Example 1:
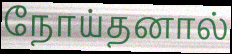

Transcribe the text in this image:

நோய்தனால்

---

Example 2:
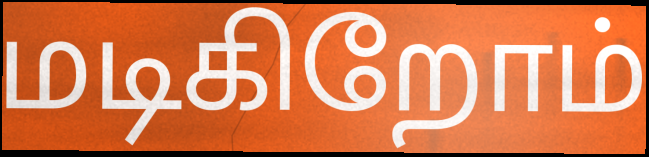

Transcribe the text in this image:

மடிகிறோம்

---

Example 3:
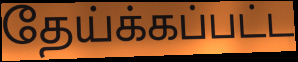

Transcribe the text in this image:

தேய்க்கப்பட்ட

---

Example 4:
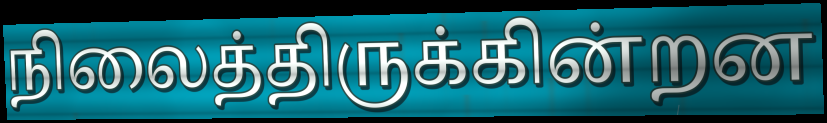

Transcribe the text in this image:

நிலைத்திருக்கின்றன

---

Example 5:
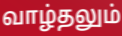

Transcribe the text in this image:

வாழ்தலும்